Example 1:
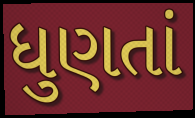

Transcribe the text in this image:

ધુણતાં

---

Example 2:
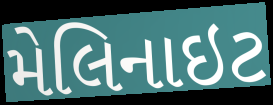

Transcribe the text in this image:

મેલિનાઇટ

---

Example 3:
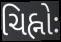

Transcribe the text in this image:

ચિહ્નોઃ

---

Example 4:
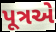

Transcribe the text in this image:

પૂત્રએ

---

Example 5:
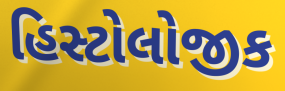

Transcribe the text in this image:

હિસ્ટોલોજીક